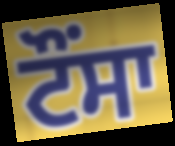
ਟੌਂਸਾ